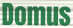
Domus